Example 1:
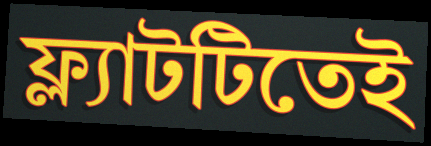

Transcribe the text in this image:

ফ্ল্যাটটিতেই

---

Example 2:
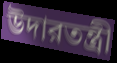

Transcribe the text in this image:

উদারতন্ত্রী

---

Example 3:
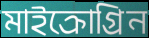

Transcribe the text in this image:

মাইক্রোগ্রিন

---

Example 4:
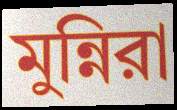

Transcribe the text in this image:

মুন্নিরা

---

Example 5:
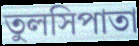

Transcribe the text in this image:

তুলসিপাতা